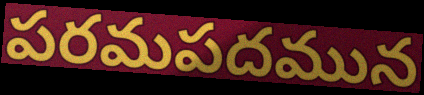
పరమపదమున